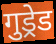
गुड्रेड